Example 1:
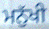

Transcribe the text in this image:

ਮਨੁੱਖੀ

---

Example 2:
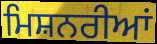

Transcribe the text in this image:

ਮਿਸ਼ਨਰੀਆਂ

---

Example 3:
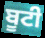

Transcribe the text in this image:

ਬੂਟੀ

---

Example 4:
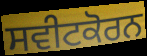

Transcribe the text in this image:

ਸਵੀਟਕੋਰਨ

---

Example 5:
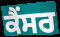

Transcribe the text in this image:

ਕੈਂਸਰ